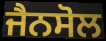
ਜੈਨਸੋਲ